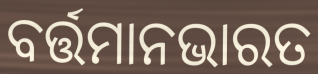
ବର୍ତ୍ତମାନଭାରତ